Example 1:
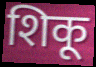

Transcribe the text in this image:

शिकू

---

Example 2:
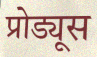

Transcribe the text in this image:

प्रोड्यूस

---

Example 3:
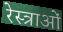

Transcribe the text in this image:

रेस्त्राओं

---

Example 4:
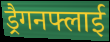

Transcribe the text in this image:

ड्रैगनफ्लाई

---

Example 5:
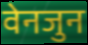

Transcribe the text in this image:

वेनजुन